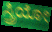
ಸ್ತ್ರಿಯೋ